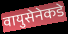
वायुसेनेकडे